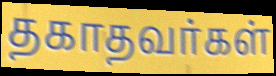
தகாதவர்கள்